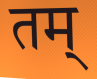
तम्